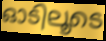
ഓടിലൂടെ